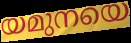
യമുനയെ